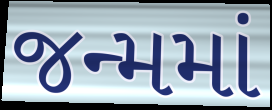
જન્મમાં